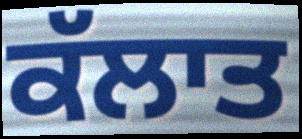
ਕੱਲਾਤ